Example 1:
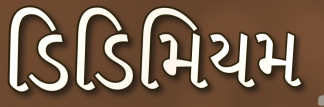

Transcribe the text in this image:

ડિડિમિયમ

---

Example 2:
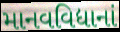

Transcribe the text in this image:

માનવવિદ્યાનાં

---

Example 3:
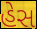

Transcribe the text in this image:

હેસ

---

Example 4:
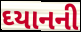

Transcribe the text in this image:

ઘ્યાનની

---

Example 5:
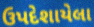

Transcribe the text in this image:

ઉપદેશાયેલા